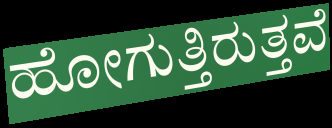
ಹೋಗುತ್ತಿರುತ್ತವೆ